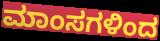
ಮಾಂಸಗಳಿಂದ